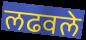
लढवले